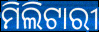
ମିଲିଟାରୀ